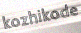
kozhikode